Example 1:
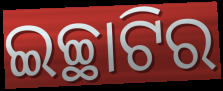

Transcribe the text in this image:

ଇଚ୍ଛାଟିର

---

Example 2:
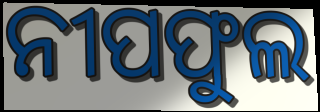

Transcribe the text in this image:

ନୀପଫୁଲ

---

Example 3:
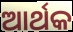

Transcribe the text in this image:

ଆର୍ଥକ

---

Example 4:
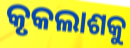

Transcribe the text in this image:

କୃକଲାଶକୁ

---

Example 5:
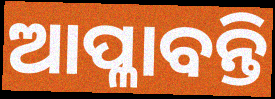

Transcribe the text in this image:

ଆପ୍ଳାବନ୍ତି